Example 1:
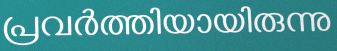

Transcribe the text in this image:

പ്രവർത്തിയായിരുന്നു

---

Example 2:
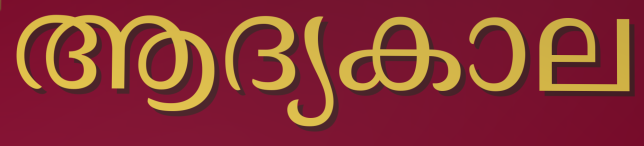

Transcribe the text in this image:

ആദ്യകാല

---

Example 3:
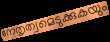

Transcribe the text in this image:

നേതൃത്വമെടുക്കുകയും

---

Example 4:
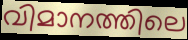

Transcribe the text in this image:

വിമാനത്തിലെ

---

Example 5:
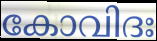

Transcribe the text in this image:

കോവിദഃ